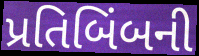
પ્રતિબિંબની